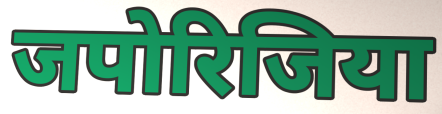
जपोरिजिया